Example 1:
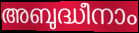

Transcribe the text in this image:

അബുദ്ധീനാം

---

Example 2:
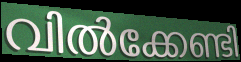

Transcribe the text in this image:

വിൽക്കേണ്ടി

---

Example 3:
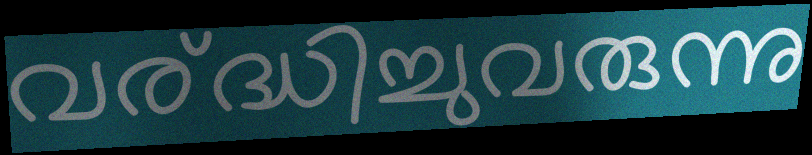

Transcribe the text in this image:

വര്ദ്ധിച്ചുവരുന്നു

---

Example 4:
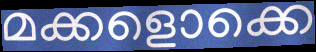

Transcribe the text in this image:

മക്കളൊക്കെ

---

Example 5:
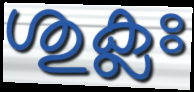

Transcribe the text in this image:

ശുക്ലഃ